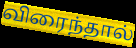
விரைந்தால்